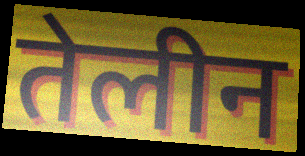
तेलीन